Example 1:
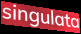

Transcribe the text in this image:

singulata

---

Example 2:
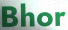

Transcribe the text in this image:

Bhor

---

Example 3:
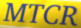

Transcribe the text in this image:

MTCR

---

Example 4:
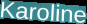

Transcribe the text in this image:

Karoline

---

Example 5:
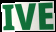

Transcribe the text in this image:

IVE